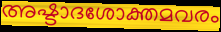
അഷ്ടാദശോക്തമവരം